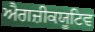
ਐਗਜ਼ੀਕਯੂਟਿਵ